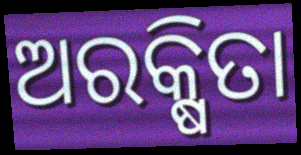
ଅରକ୍ଷିତା